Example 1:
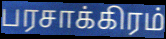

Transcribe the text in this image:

பரசாக்கிரம்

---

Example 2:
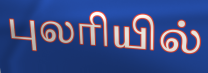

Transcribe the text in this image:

புலரியில்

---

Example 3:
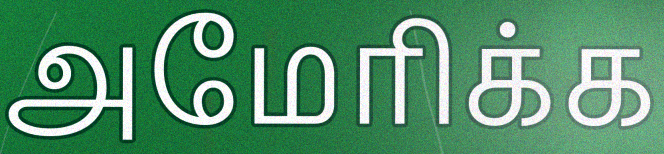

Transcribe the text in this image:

அமேரிக்க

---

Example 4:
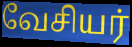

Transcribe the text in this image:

வேசியர்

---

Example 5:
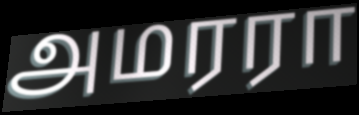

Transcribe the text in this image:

அமரரா